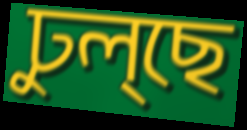
ঢুল্‌ছে